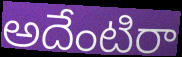
అదేంటిరా